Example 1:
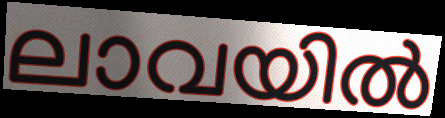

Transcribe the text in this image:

ലാവയിൽ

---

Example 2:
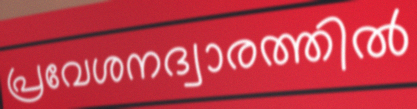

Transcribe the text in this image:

പ്രവേശനദ്വാരത്തിൽ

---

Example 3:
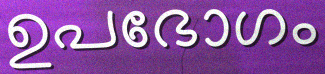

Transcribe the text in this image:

ഉപഭോഗം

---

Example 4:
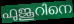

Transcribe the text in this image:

ഫുജൂറിനെ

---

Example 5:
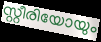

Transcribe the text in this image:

സ്റ്റീരിയോയും